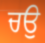
ਚਉ